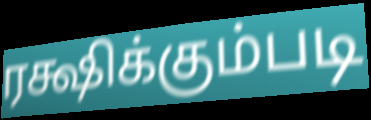
ரக்ஷிக்கும்படி